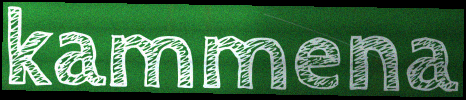
kammena